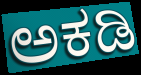
ಅಕಡಿ